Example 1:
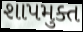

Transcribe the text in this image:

શાપમુક્ત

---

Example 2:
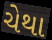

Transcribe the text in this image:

ચેથા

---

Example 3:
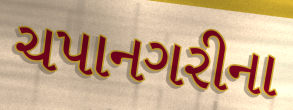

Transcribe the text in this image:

ચપાનગરીના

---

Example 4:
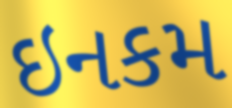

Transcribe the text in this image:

ઇનકમ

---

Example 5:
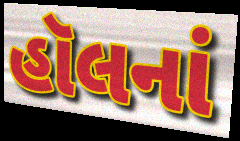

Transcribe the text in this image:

હૉલનાં